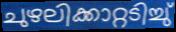
ചുഴലിക്കാറ്റടിച്ചു്